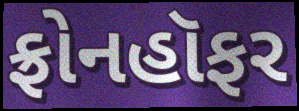
ફ્રોનહૉફર